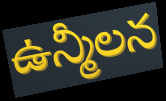
ఉన్మీలన